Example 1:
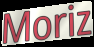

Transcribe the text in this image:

Moriz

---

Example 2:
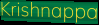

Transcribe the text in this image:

Krishnappa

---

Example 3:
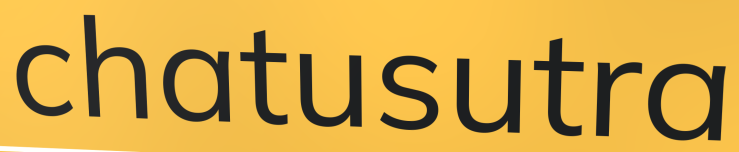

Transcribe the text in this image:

chatusutra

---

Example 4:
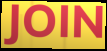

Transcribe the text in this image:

JOIN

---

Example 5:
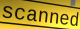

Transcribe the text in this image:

scanned